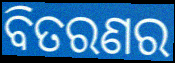
ବିତରଣର